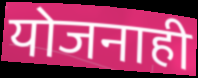
योजनाही